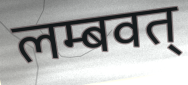
लम्बवत्